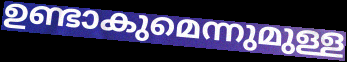
ഉണ്ടാകുമെന്നുമുള്ള